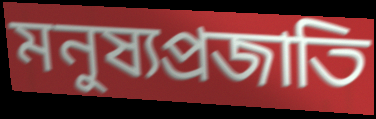
মনুষ্যপ্রজাতি